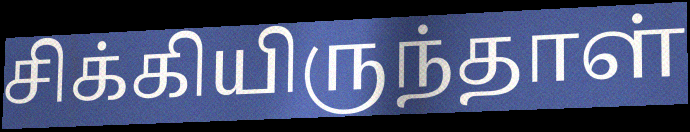
சிக்கியிருந்தாள்